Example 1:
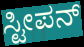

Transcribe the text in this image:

ಸ್ಟೀಪನ್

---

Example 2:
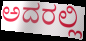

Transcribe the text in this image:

ಅದರಲ್ಲಿ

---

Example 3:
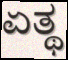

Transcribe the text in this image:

ಏತ್ಥ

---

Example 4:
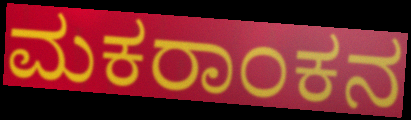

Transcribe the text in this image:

ಮಕರಾಂಕನ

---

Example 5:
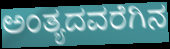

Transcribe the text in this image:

ಅಂತ್ಯದವರೆಗಿನ